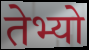
तेभ्यो